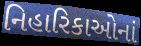
નિહારિકાઓનાં